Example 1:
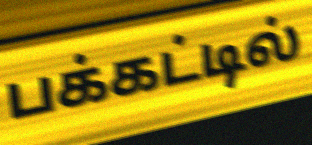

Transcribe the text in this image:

பக்கட்டில்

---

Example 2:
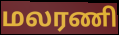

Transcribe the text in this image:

மலரணி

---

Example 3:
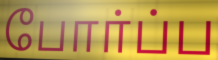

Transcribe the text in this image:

போர்ப்ப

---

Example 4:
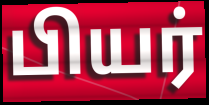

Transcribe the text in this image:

பியர்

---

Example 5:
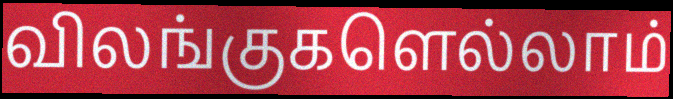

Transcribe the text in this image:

விலங்குகளெல்லாம்